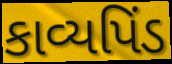
કાવ્યપિંડ